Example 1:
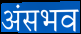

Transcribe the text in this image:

अंसभव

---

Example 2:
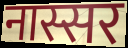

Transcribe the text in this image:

नास्सर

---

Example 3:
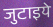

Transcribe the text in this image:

जुटाइये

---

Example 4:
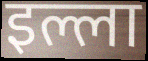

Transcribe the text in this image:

इल्ला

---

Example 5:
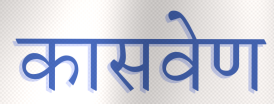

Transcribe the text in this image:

कासवेण